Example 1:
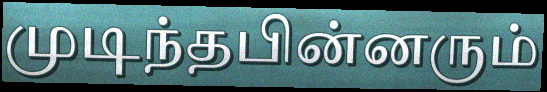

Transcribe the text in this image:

முடிந்தபின்னரும்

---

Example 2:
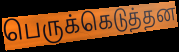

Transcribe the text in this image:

பெருக்கெடுத்தன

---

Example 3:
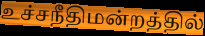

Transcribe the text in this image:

உச்சநீதிமன்றத்தில்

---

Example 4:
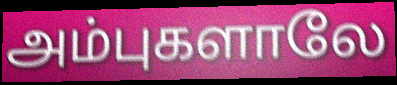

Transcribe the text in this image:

அம்புகளாலே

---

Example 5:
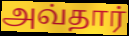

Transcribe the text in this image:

அவ்தார்